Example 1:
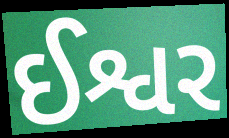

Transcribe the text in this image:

ઈશ્વર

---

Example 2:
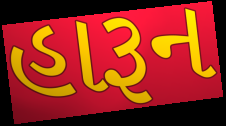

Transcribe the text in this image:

હારૂન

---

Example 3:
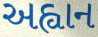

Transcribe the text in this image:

અહ્વાન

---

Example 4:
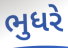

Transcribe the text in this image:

ભુધરે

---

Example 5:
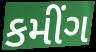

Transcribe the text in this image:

કમીંગ